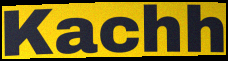
Kachh